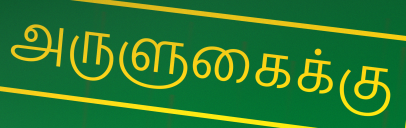
அருளுகைக்கு